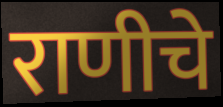
राणीचे